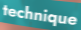
technique